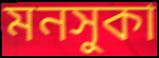
মনসুকা